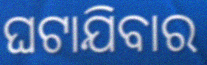
ଘଟାଯିବାର